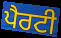
ਪੈਰਟੀ